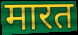
मारत